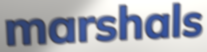
marshals